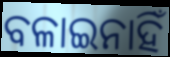
ବଳାଇନାହିଁ